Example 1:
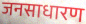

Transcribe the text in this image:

जनसाधारण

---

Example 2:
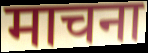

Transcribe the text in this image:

माचना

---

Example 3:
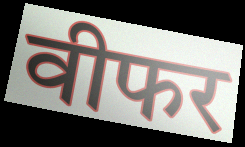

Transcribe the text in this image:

वीफर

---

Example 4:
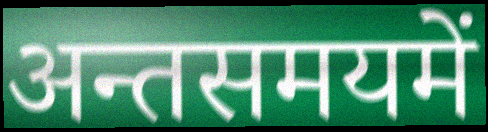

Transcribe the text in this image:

अन्तसमयमें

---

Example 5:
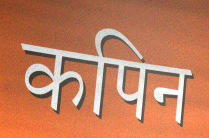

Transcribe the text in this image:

कपिन